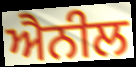
ਐਨੀਲ